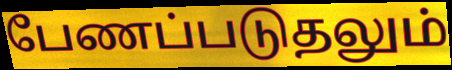
பேணப்படுதலும்